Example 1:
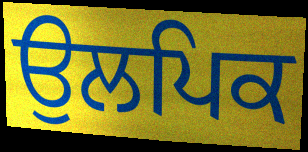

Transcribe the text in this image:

ਉਲਪਿਕ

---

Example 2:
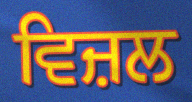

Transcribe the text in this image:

ਵਿਜ਼ਲ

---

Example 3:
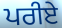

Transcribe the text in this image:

ਪਰੀਏ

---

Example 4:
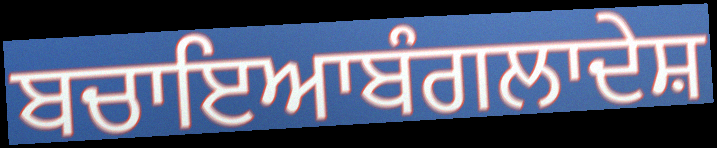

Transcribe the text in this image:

ਬਚਾਇਆਬੰਗਲਾਦੇਸ਼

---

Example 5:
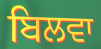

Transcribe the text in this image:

ਬਿਲਵਾ